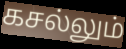
கசல்லும்